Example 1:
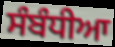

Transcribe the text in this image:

ਸੰਬੰਧੀਆ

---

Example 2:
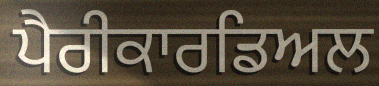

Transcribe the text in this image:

ਪੈਰੀਕਾਰਡਿਅਲ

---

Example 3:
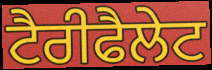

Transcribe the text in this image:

ਟੈਰੀਫੈਲੇਟ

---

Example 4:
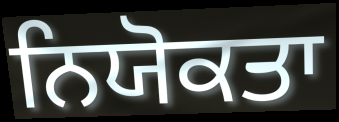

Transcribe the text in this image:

ਨਿਯੋਕਤਾ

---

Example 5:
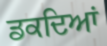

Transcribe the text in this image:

ਡਕਦਿਆਂ